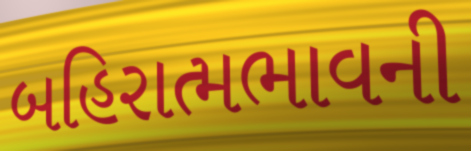
બહિરાત્મભાવની